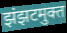
झंझटमुक्त